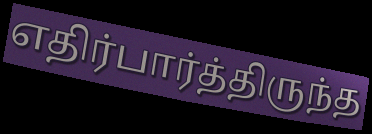
எதிர்பார்த்திருந்த